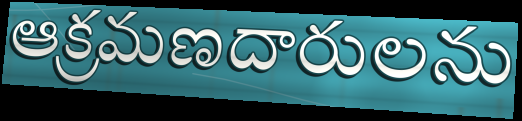
ఆక్రమణదారులను